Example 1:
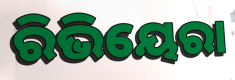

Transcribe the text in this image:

ରିଭିୟେରା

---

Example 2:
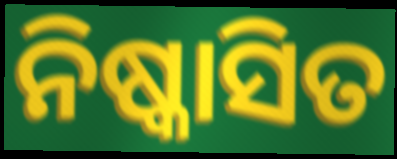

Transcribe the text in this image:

ନିଷ୍କାସିତ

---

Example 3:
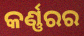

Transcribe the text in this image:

କର୍ଣ୍ଣରର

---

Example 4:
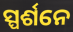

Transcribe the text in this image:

ସ୍ପର୍ଶନେ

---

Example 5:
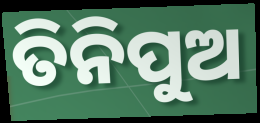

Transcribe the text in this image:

ତିନିପୁଅ